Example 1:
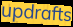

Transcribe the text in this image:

updrafts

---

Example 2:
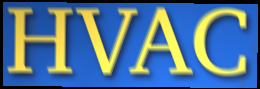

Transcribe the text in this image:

HVAC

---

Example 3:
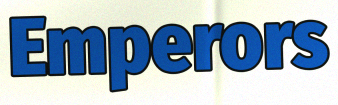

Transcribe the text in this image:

Emperors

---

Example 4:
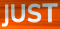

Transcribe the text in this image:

JUST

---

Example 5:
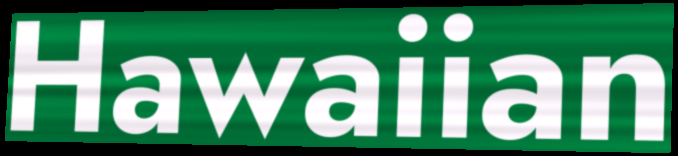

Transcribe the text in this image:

Hawaiian